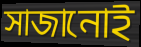
সাজানোই